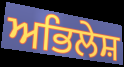
ਅਭਿਲੇਸ਼